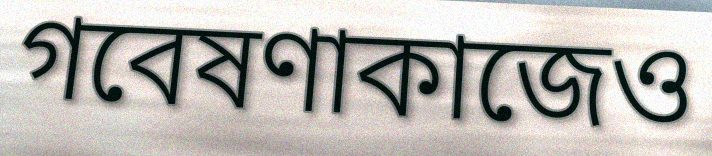
গবেষণাকাজেও